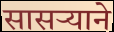
सासऱ्याने